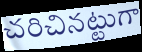
చరిచినట్టుగా